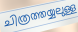
ചിത്രത്തയ്യലുള്ള